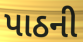
પાઠની